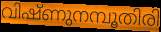
വിഷ്ണുനമ്പൂതിരി